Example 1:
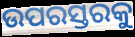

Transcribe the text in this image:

ଉପରସ୍ତରକୁ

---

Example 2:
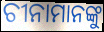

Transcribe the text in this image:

ଚୀନାମାନଙ୍କୁ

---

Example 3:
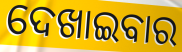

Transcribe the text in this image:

ଦେଖାଇବାର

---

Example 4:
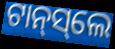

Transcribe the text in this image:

ଟାନ୍‌ସ୍‌ଲେ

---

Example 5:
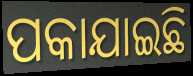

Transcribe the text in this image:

ପକାଯାଇଛି